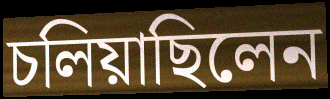
চলিয়াছিলেন